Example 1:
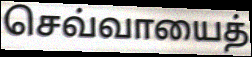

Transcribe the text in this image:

செவ்வாயைத்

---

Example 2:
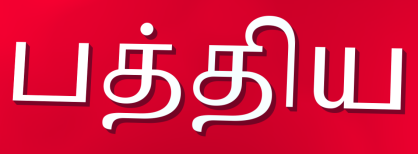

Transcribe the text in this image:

பத்திய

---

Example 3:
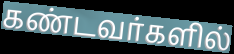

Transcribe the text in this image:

கண்டவர்களில்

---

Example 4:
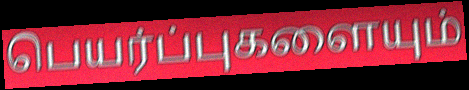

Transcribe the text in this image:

பெயர்ப்புகளையும்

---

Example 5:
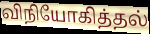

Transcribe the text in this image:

விநியோகித்தல்